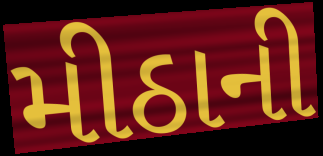
મીઠાની